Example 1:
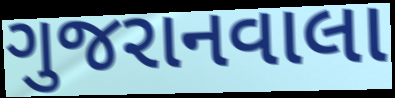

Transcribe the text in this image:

ગુજરાનવાલા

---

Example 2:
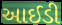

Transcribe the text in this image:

આઈડી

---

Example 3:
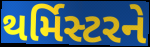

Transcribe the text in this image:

થર્મિસ્ટરને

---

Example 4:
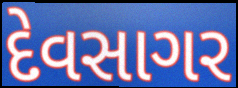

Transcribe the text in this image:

દેવસાગર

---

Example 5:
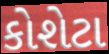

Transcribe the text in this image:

કોશેટા